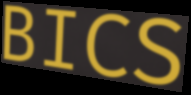
BICS